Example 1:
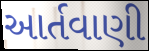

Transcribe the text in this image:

આર્તવાણી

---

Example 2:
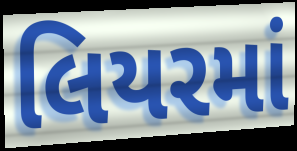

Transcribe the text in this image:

લિયરમાં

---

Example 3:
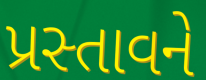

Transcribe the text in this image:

પ્રસ્તાવને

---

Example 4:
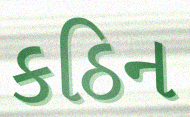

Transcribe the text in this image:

કઠિન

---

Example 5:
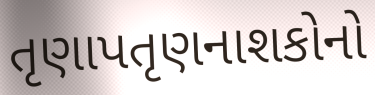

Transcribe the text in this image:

તૃણાપતૃણનાશકોનો